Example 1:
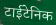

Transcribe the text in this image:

टाईटेनिक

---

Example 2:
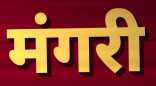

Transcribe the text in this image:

मंगरी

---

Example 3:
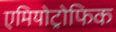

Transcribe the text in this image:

एमियोट्रोफिक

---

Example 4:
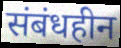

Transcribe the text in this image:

संबंधहीन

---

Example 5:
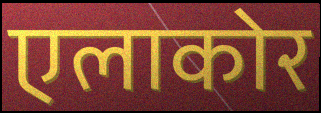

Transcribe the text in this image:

एलाकोर